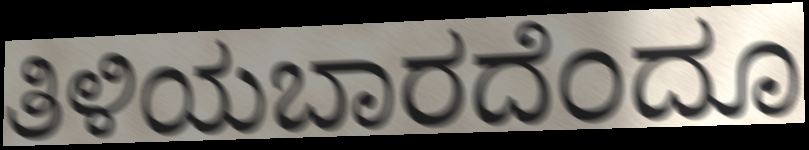
ತಿಳಿಯಬಾರದೆಂದೂ